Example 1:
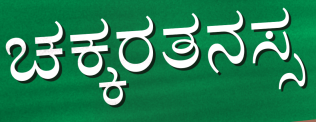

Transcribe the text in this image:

ಚಕ್ಕರತನಸ್ಸ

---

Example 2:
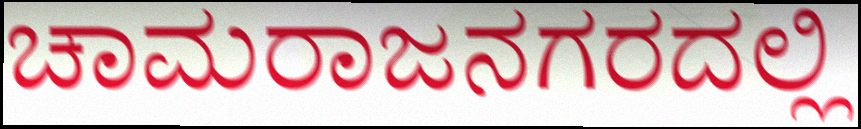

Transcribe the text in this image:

ಚಾಮರಾಜನಗರದಲ್ಲಿ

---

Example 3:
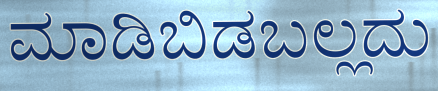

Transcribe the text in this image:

ಮಾಡಿಬಿಡಬಲ್ಲದು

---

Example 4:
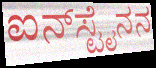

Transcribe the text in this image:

ಐನ್‌ಸ್ಟೈನನ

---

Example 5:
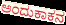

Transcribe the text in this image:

ಅಂದುಕಾಕನ